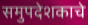
समुपदेशकाचे